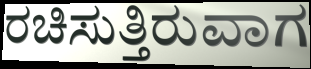
ರಚಿಸುತ್ತಿರುವಾಗ